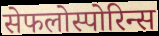
सेफलोस्पोरिन्स